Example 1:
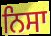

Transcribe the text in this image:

ਨਿਸਾ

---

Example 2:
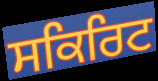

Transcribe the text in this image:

ਸਕਿਰਿਟ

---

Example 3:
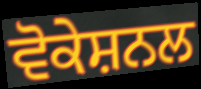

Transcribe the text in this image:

ਵੋਕੇਸ਼ਨਲ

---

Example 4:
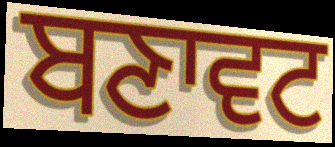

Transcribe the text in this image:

ਬਣਾਵਟ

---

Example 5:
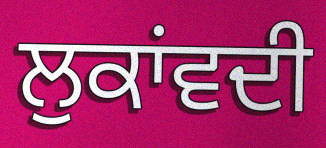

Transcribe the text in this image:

ਲੁਕਾਂਵਦੀ